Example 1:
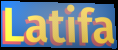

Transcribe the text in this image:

Latifa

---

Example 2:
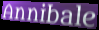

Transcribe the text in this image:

Annibale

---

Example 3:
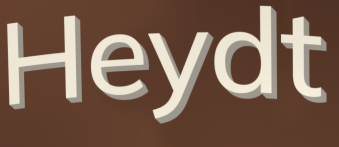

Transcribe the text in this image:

Heydt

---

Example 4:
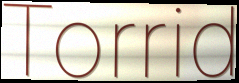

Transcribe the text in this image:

Torrid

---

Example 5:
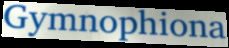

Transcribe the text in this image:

Gymnophiona